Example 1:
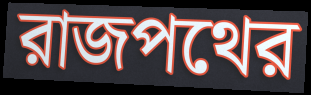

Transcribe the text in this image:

রাজপথের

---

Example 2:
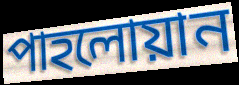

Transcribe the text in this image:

পাহলোয়ান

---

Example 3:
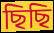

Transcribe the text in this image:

ছিছি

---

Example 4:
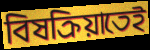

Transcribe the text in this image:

বিষক্রিয়াতেই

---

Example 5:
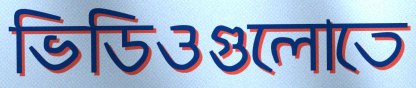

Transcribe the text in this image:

ভিডিওগুলোতে